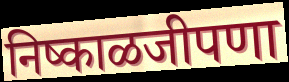
निष्काळजीपणा